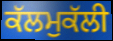
ਕੱਲਮੁਕੱਲੀ